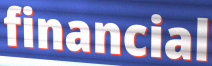
financial